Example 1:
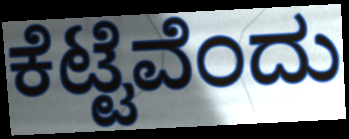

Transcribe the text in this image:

ಕೆಟ್ಟೆವೆಂದು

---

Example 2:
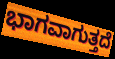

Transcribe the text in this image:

ಭಾಗವಾಗುತ್ತದೆ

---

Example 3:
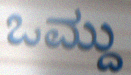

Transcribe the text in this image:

ಒಮ್ದು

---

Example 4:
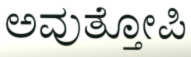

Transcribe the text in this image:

ಅವುತ್ತೋಪಿ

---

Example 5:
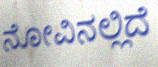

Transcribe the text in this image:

ನೋವಿನಲ್ಲಿದೆ